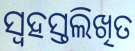
ସ୍ୱହସ୍ତଲିଖିତ